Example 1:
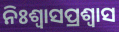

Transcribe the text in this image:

ନିଃଶ୍ୱାସପ୍ରଶ୍ୱାସ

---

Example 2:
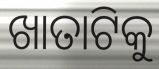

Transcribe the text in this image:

ଖାତାଟିକୁ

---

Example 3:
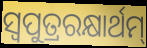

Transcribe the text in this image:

ସ୍ଵପୁତ୍ରରକ୍ଷାର୍ଥମ୍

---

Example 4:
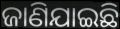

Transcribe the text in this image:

ଜାଣିଯାଇଛି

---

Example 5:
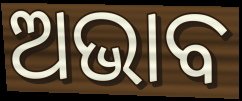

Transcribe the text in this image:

ଅଭାବ